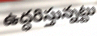
ఉద్ధరిస్తున్నట్టు